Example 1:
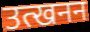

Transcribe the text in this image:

उत्‍खनन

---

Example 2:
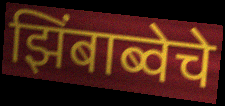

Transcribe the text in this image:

झिंबाब्वेचे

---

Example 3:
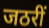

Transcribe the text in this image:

जठरीं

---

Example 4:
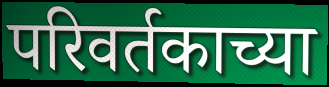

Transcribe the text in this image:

परिवर्तकाच्या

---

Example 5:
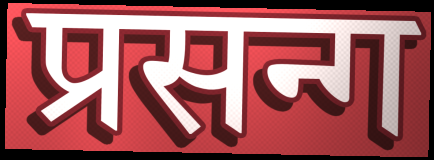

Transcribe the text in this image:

प्रसन्ग